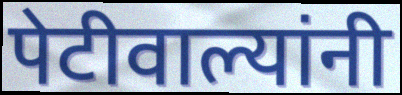
पेटीवाल्यांनी